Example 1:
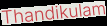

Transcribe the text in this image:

Thandikulam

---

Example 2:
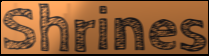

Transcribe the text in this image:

Shrines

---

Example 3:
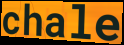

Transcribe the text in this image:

chale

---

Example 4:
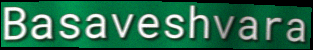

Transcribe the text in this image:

Basaveshvara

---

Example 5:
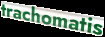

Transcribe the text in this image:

trachomatis